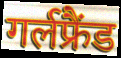
गर्लफ्रैंड